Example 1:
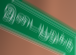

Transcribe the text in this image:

இடையூறுக்கு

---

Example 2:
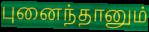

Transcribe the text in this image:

புனைந்தானும்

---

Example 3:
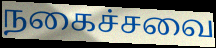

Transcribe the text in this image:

நகைச்சவை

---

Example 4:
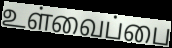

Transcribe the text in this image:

உள்வைப்பை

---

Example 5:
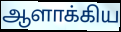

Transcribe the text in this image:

ஆளாக்கிய